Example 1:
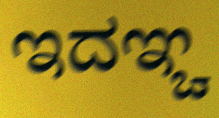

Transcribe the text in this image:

ಇದಞ್ಚ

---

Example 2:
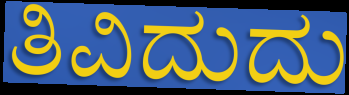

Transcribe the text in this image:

ತಿವಿದುದು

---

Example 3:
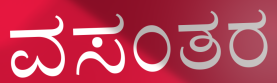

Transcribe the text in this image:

ವಸಂತರ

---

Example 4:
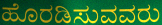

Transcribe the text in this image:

ಹೊರಡಿಸುವವರು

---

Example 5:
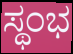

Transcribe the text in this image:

ಸ್ಥಂಭ